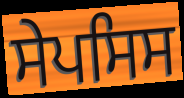
ਸੇਪਸਿਸ